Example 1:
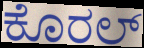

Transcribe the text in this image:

ಕೊರಲ್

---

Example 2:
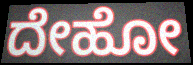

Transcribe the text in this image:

ದೇಹೋ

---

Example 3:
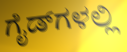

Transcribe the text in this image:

ಗೈಡ್‌ಗಳಲ್ಲಿ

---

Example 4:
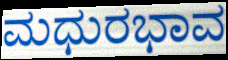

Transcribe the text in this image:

ಮಧುರಭಾವ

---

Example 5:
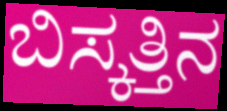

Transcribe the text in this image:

ಬಿಸ್ಕತ್ತಿನ